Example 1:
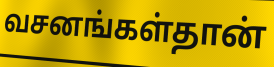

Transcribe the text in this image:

வசனங்கள்தான்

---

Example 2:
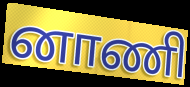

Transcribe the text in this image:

னாணி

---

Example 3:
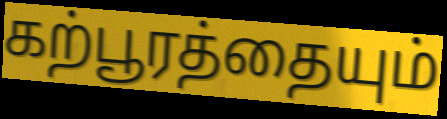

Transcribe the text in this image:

கற்பூரத்தையும்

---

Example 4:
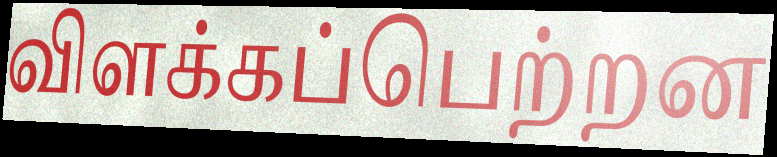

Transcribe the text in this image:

விளக்கப்பெற்றன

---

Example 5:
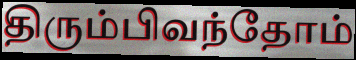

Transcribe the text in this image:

திரும்பிவந்தோம்